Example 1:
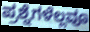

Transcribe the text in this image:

ಪ್ರಶ್ನೆಗಳೆಲ್ಲವೂ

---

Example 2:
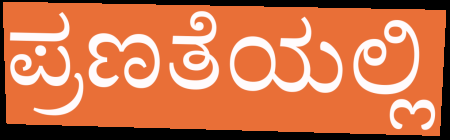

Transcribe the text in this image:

ಪ್ರಣತೆಯಲ್ಲಿ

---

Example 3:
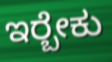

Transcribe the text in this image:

ಇರ‍್ಬೇಕು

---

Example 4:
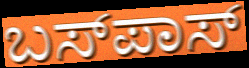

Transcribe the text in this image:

ಬಸ್‍ಪಾಸ್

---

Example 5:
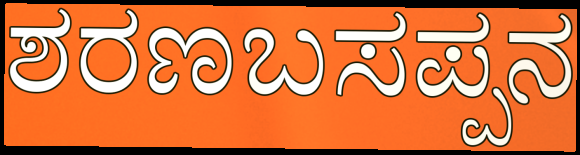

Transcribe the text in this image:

ಶರಣಬಸಪ್ಪನ